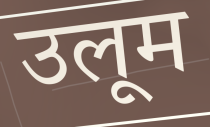
उलूम